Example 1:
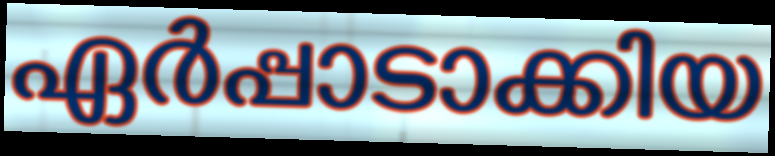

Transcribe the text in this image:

ഏർപ്പാടാക്കിയ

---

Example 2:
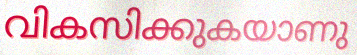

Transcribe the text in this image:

വികസിക്കുകയാണു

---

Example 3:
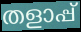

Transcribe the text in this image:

തളാപ്പ്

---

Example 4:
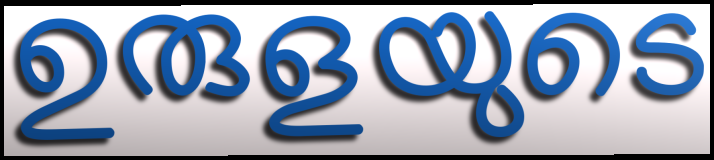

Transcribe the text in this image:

ഉരുളയുടെ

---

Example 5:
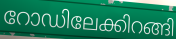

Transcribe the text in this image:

റോഡിലേക്കിറങ്ങി